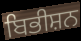
ਬਿਭੀਸ਼ਨ